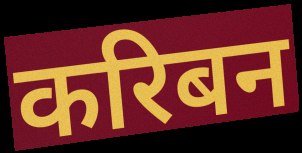
करिबन